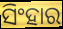
ସିଂହାର